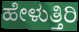
ಹೇಳುತ್ತಿರಿ